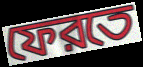
ফেরতে